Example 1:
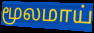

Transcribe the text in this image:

மூலமாய்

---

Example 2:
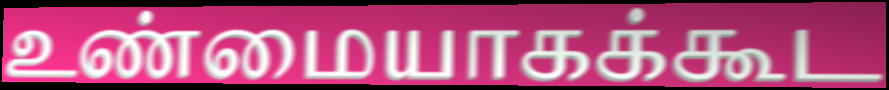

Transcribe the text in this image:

உண்மையாகக்கூட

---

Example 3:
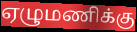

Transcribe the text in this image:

ஏழுமணிக்கு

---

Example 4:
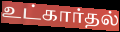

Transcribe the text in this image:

உட்கார்தல்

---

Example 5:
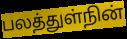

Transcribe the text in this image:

பலத்துள்நின்